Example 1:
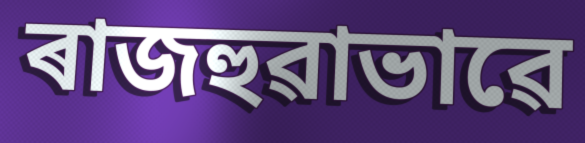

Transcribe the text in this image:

ৰাজহুৱাভাৱে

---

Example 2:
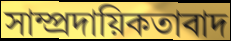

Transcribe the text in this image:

সাম্প্ৰদায়িকতাবাদ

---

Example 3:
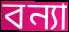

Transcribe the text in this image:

বন্যা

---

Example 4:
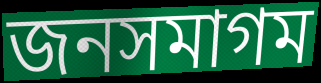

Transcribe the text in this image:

জনসমাগম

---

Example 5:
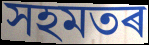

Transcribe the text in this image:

সহমতৰ